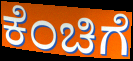
ಕೆಂಚಿಗೆ